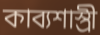
কাব্যশাস্ত্রী